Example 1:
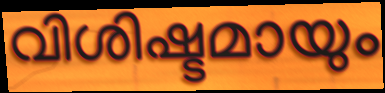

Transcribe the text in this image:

വിശിഷ്ടമായും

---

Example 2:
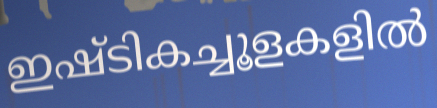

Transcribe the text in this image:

ഇഷ്ടികച്ചൂളകളിൽ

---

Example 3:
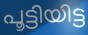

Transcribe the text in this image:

പൂട്ടിയിട്ട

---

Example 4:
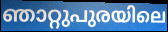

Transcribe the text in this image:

ഞാറ്റുപുരയിലെ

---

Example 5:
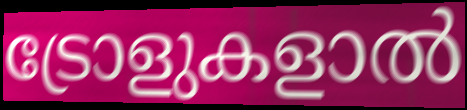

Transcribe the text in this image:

ട്രോളുകളാൽ